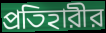
প্রতিহারীর